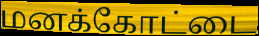
மனக்கோட்டை